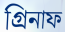
গ্রিনাফ